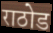
राठोड